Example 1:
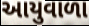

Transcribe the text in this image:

આયુવાળા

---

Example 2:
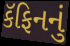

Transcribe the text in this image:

કૅફિનનું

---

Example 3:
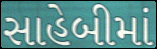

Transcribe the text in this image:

સાહેબીમાં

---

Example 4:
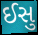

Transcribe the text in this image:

ઈસુ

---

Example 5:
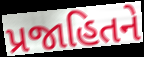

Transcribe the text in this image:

પ્રજાહિતને